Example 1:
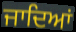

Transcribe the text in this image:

ਜਾਦਿਆਂ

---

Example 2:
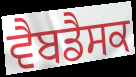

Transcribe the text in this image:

ਵੈਬਡੈਸਕ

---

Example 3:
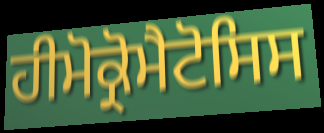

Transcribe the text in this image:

ਹੀਮੋਕ੍ਰੋਮੈਟੋਸਿਸ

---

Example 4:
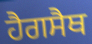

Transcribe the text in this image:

ਹੈਗਸੈਥ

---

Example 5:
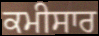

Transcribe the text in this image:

ਕਮੀਸਾਰ